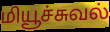
மியூச்சுவல்